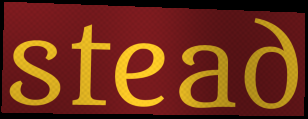
stead